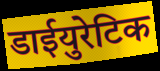
डाईयुरेटिक